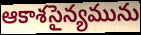
ఆకాశసైన్యమును